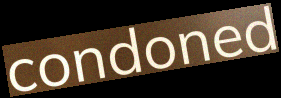
condoned